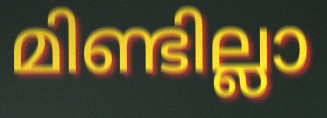
മിണ്ടില്ലാ